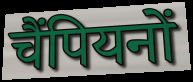
चैंपियनों